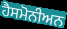
ਹੈਸਮੋਨੀਅਨ